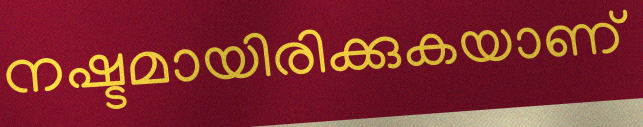
നഷ്ടമായിരിക്കുകയാണ്